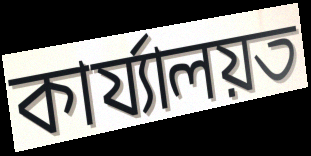
কাৰ্য্যালয়ত